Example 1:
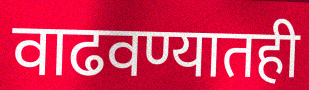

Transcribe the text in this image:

वाढवण्यातही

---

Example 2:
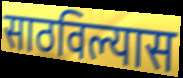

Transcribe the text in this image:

साठविल्यास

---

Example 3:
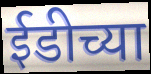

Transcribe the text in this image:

ईडीच्या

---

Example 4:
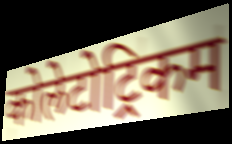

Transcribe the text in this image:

कोलेटोट्रिकम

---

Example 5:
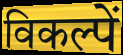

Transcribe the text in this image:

विकल्पें